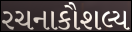
રચનાકૌશલ્ય